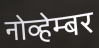
नोव्हेम्बर